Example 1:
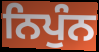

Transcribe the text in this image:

ਨਿਪੁੰਨ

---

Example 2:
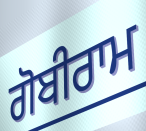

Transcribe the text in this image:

ਗੋਬੀਰਾਮ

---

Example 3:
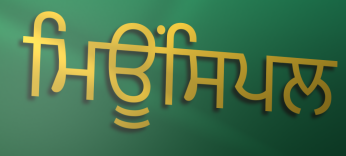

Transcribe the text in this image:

ਮਿਊਂਸਿਪਲ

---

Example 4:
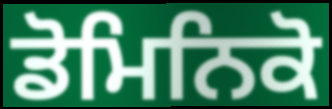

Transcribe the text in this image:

ਡੋਮਿਨਿਕੋ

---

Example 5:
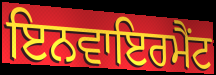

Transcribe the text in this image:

ਇਨਵਾਇਰਮੈਂਟ